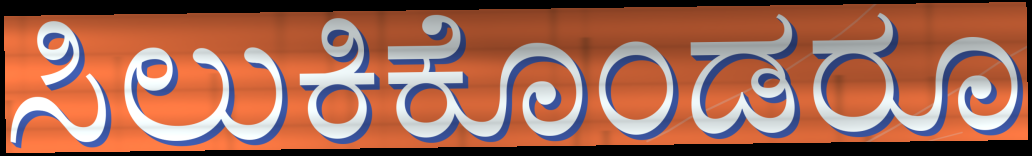
ಸಿಲುಕಿಕೊಂಡರೂ